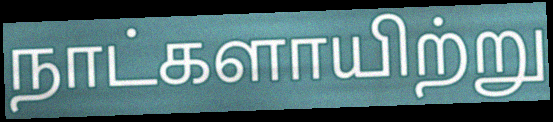
நாட்களாயிற்று